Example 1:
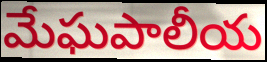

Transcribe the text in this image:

మేఘపాలీయ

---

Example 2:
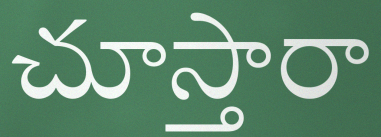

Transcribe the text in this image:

చూస్తారా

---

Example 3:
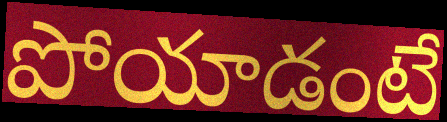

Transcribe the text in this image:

పోయాడంటే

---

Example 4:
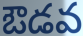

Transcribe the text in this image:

ఔడవ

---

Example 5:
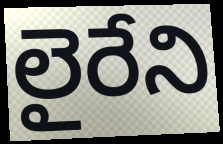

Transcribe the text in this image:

లైరేని